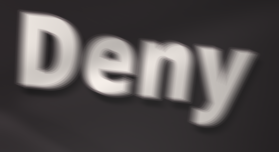
Deny